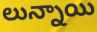
లున్నాయి